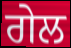
ਗੇਲ